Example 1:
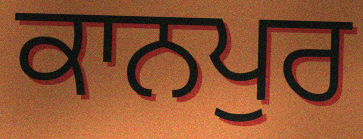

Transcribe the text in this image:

ਕਾਨਪੁਰ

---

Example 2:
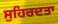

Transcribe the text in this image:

ਸੁਹਿਰਦਤਾ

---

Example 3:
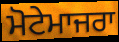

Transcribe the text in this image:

ਮੋਟੇਮਾਜਰਾ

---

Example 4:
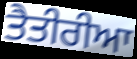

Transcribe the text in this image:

ਤੈਤੀਰੀਆ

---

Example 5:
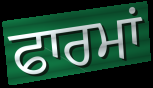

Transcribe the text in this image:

ਫਾਰਮਾਂ